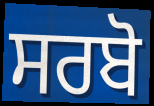
ਸਰਬੋ